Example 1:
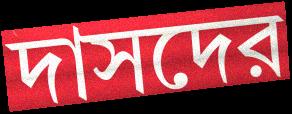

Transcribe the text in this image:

দাসদের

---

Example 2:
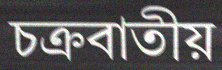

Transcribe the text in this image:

চক্রবাতীয়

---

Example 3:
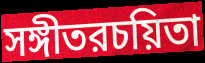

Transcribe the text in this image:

সঙ্গীতরচয়িতা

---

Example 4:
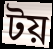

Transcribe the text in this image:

টয়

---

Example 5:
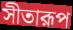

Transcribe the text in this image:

সীতারূপ